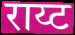
राय्ट